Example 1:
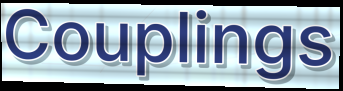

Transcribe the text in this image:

Couplings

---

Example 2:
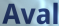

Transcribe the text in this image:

Aval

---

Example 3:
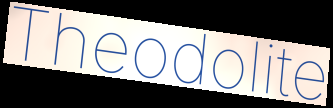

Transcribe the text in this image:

Theodolite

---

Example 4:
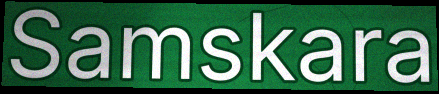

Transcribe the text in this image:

Samskara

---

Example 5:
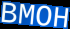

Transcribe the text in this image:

BMOH